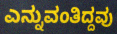
ಎನ್ನುವಂತಿದ್ದವು